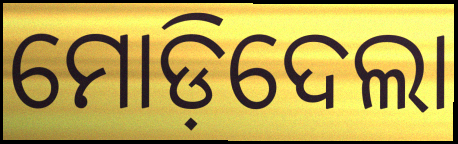
ମୋଡ଼ିଦେଲା